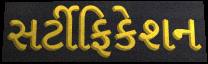
સર્ટીફિકેશન